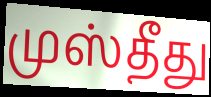
முஸ்தீது